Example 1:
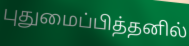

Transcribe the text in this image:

புதுமைப்பித்தனில்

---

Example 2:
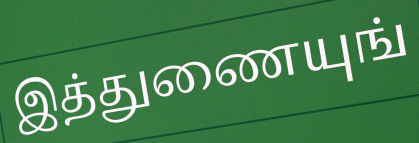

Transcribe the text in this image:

இத்துணையுங்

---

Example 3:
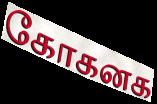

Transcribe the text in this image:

கோகனக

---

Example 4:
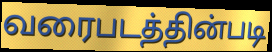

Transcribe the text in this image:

வரைபடத்தின்படி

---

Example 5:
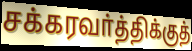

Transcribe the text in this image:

சக்கரவர்த்திக்குத்